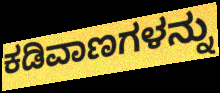
ಕಡಿವಾಣಗಳನ್ನು